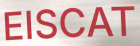
EISCAT